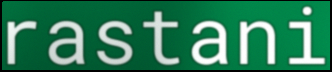
rastani